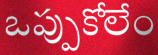
ఒప్పుకోలేం